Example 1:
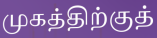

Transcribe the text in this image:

முகத்திற்குத்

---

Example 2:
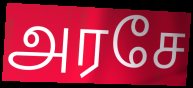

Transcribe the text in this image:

அரசே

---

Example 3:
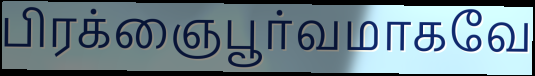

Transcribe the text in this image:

பிரக்ஞைபூர்வமாகவே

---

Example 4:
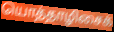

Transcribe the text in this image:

யொத்தாழிசைக்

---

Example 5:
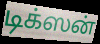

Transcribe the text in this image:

டிக்ஸன்